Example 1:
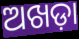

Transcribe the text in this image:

ଅଖଡ଼ା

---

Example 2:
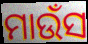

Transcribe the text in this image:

ମାଉଁସ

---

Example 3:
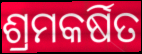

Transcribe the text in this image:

ଶ୍ରମକର୍ଷିତ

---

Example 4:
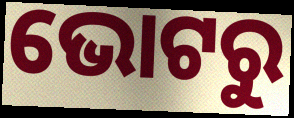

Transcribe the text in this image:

ଭୋଟରୁ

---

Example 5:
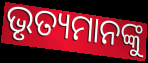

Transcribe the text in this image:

ଭୃତ୍ୟମାନଙ୍କୁ